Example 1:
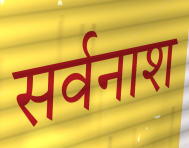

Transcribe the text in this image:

सर्वनाश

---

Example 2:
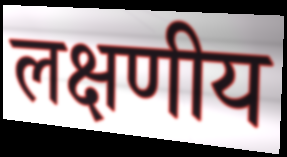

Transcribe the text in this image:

लक्षणीय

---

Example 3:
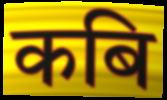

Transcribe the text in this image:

कबि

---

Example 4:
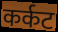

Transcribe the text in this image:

कर्कट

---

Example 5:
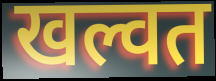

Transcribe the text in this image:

खल्वत